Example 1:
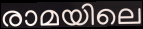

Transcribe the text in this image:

രാമയിലെ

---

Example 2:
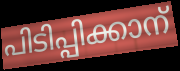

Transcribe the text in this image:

പിടിപ്പിക്കാന്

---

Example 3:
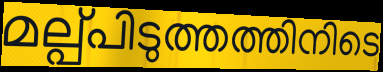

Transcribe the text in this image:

മല്പ്പിടുത്തത്തിനിടെ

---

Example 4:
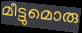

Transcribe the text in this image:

മീട്ടുമൊരു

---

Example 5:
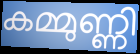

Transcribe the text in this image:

കമ്മുണ്ണി